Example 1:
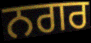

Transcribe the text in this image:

ਨਗਰ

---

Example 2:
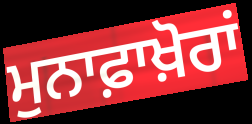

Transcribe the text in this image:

ਮੁਨਾਫ਼ਾਖ਼ੋਰਾਂ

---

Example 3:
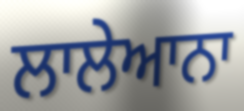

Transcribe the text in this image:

ਲਾਲੇਆਨਾ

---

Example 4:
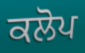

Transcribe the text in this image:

ਕਲੋਪ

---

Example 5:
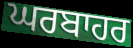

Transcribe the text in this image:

ਘਰਬਾਹਰ